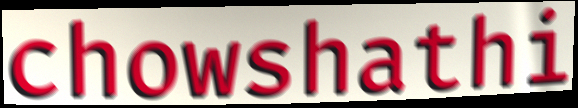
chowshathi